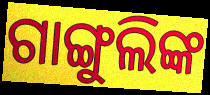
ଗାଙ୍ଗୁଲିଙ୍କ